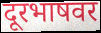
दूरभाषवर